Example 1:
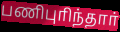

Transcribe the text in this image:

பணிபுரிந்தார்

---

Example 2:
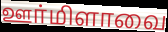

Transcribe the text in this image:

ஊர்மிளாவை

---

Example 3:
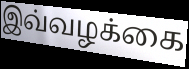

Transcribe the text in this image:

இவ்வழக்கை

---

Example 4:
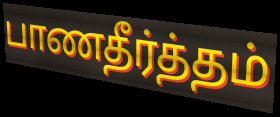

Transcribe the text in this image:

பாணதீர்த்தம்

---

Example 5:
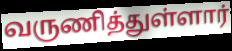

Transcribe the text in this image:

வருணித்துள்ளார்